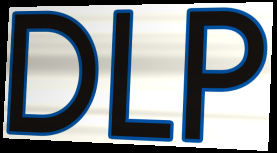
DLP